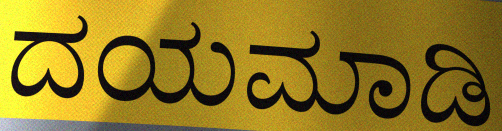
ದಯಮಾಡಿ